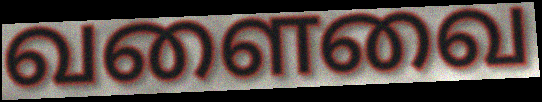
வளைவை